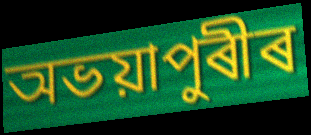
অভয়াপুৰীৰ